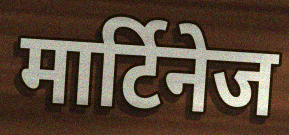
मार्टिनेज